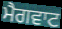
ਮੈਗਵਾਟ